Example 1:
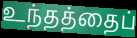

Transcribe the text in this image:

உந்தத்தைப்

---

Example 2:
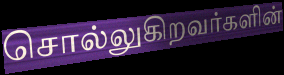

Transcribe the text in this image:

சொல்லுகிறவர்களின்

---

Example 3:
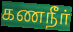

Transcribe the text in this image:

கணநீர்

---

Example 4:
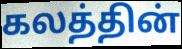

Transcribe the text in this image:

கலத்தின்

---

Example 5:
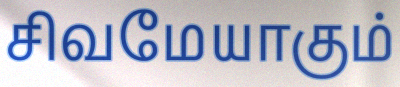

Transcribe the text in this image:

சிவமேயாகும்